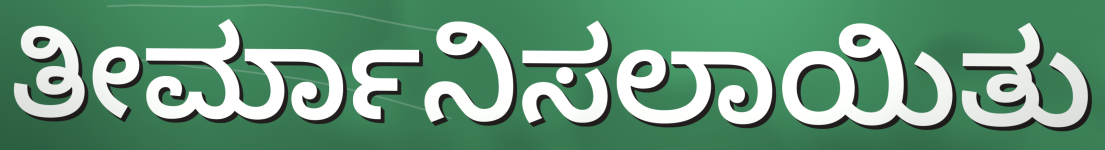
ತೀರ್ಮಾನಿಸಲಾಯಿತು